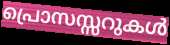
പ്രൊസസ്സറുകൾ